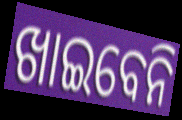
ଖାଇବେନି